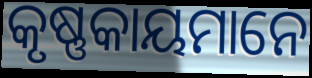
କୃଷ୍ଣକାୟମାନେ